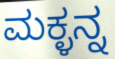
ಮಕ್ಳನ್ನ